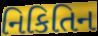
નિકિતિન